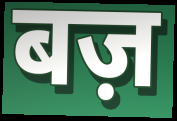
बज़